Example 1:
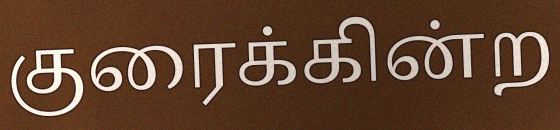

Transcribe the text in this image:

குரைக்கின்ற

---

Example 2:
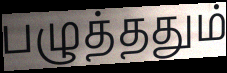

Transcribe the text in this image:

பழுத்ததும்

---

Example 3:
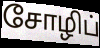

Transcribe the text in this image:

சோழிப்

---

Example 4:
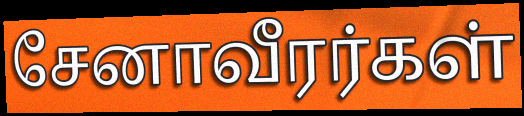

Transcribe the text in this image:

சேனாவீரர்கள்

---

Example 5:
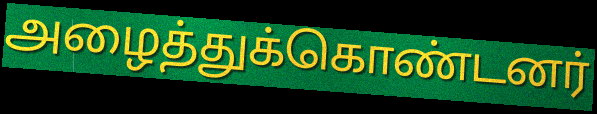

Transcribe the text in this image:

அழைத்துக்கொண்டனர்